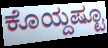
ಕೊಯ್ದಷ್ಟೂ